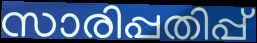
സാരിപ്പതിപ്പ്